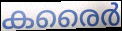
കരൈർ